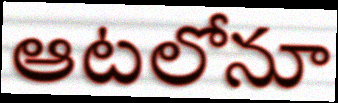
ఆటలోనూ